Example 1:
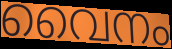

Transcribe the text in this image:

വൈനം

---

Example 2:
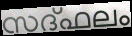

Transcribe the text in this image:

സദ്ഫലം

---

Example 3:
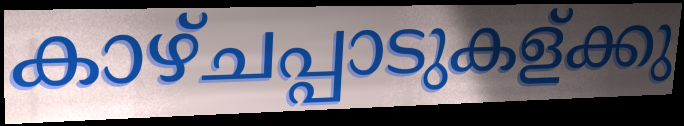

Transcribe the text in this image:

കാഴ്ചപ്പാടുകള്ക്കു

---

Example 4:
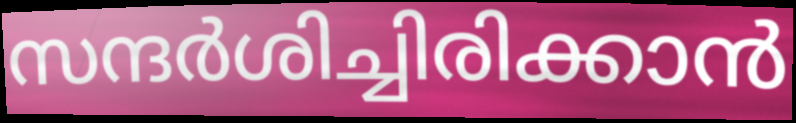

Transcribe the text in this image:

സന്ദർശിച്ചിരിക്കാൻ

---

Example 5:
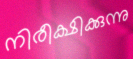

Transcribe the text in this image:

നിരീക്ഷിക്കുന്നു